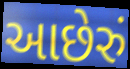
આછેરું